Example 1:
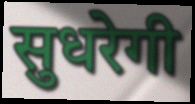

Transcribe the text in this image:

सुधरेगी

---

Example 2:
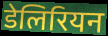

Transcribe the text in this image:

डेलिरियन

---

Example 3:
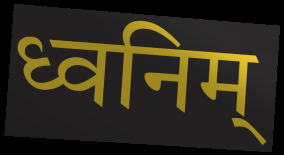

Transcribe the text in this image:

ध्वनिम्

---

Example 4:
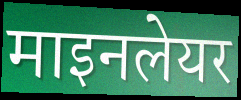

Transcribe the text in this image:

माइनलेयर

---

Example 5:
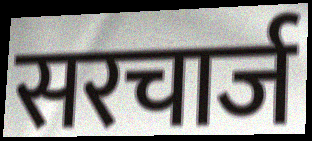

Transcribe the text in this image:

सरचार्ज